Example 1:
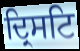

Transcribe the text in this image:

ਦ੍ਰਿਸਟਿ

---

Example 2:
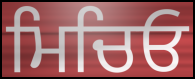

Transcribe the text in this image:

ਮਿਚਿਓ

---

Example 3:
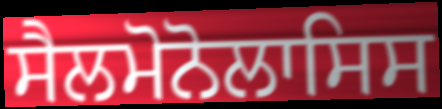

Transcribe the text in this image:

ਸੈਲਮੋਨੋਲਾਸਿਸ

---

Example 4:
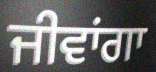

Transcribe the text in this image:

ਜੀਵਾਂਗਾ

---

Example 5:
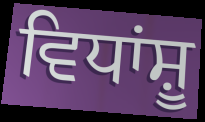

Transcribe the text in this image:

ਵਿਧਾਂਸ਼ੂ